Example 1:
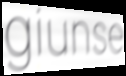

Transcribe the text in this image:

giunse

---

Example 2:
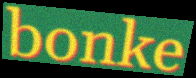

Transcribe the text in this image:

bonke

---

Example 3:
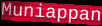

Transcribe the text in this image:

Muniappan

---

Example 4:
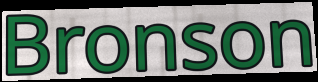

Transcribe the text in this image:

Bronson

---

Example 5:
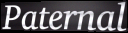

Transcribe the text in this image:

Paternal